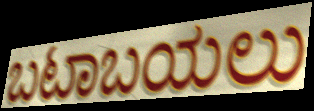
ಬಟಾಬಯಲು